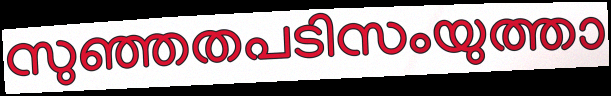
സുഞ്ഞതപടിസംയുത്താ